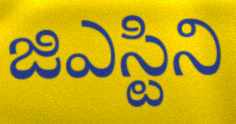
జిఎస్టిని